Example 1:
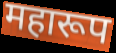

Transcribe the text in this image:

महारूप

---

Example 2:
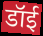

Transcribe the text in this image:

डॉई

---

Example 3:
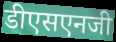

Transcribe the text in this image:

डीएसएनजी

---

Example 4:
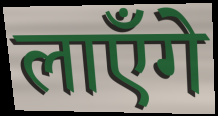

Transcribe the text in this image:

लाएँगे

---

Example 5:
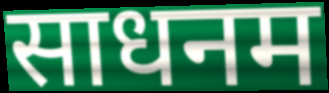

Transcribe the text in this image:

साधनम